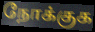
நோக்குக